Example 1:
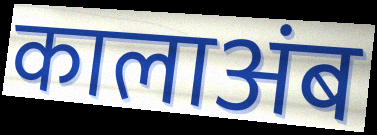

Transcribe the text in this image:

कालाअंब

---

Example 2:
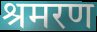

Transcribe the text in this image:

श्रमरण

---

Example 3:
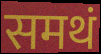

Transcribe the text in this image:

समथं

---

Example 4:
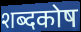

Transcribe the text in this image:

शब्दकोष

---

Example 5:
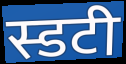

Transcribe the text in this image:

स्डटी